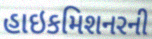
હાઇકમિશનરની